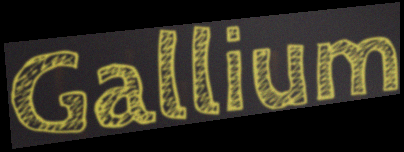
Gallium